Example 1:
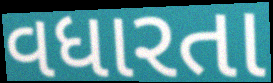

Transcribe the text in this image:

વધારતા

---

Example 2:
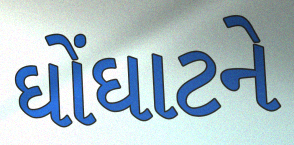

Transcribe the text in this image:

ઘોંઘાટને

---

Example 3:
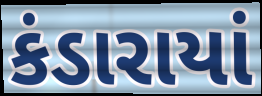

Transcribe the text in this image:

કંડારાયાં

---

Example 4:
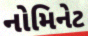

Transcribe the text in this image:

નોમિનેટ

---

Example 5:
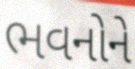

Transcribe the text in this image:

ભવનોને